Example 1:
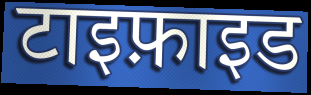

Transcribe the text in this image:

टाइफ़ाइड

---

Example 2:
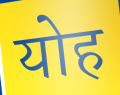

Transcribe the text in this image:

योह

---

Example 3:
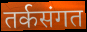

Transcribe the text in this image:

तर्कसंगत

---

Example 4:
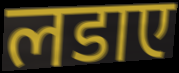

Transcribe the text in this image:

लडाए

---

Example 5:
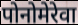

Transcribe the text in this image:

पोनोमेरेवा